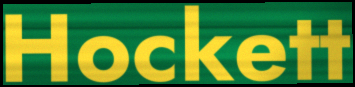
Hockett